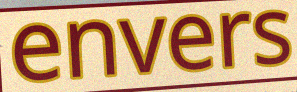
envers